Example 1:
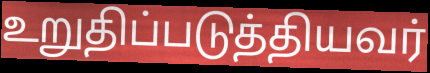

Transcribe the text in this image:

உறுதிப்படுத்தியவர்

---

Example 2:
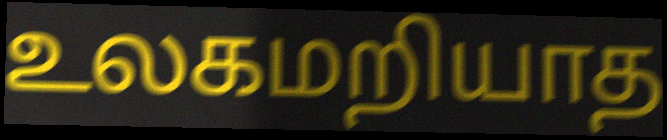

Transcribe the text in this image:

உலகமறியாத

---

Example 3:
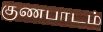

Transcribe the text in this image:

குணபாடம்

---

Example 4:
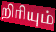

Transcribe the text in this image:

றிரியும்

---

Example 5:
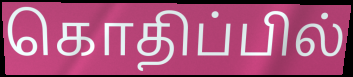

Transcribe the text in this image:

கொதிப்பில்